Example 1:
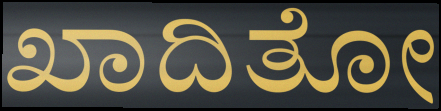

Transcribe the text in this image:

ಖಾದಿತೋ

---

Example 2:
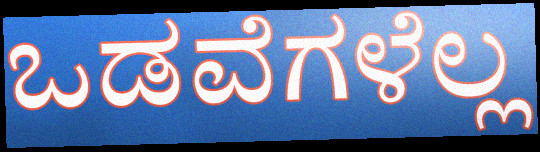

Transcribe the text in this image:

ಒಡವೆಗಳೆಲ್ಲ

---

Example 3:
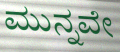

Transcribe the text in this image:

ಮುನ್ನವೇ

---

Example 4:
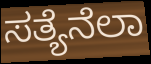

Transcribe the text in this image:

ಸತ್ಯೆನೆಲಾ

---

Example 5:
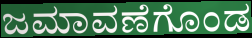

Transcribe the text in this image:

ಜಮಾವಣೆಗೊಂಡ